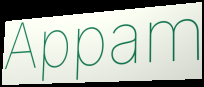
Appam